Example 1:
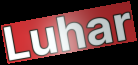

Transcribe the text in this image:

Luhar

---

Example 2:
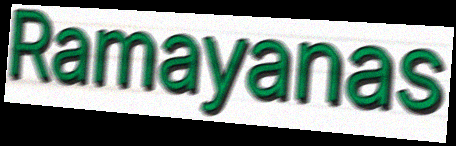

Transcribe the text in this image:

Ramayanas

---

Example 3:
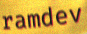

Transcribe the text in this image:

ramdev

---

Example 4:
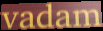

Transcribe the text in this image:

vadam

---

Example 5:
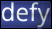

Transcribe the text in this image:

defy